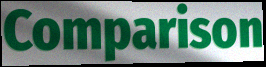
Comparison